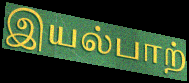
இயல்பாற்